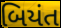
બિયંત